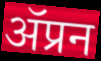
ॲप्रन